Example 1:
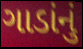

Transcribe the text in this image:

ગાડાંનું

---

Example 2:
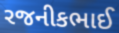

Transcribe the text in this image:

રજનીકભાઈ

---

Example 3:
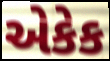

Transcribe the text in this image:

એકેક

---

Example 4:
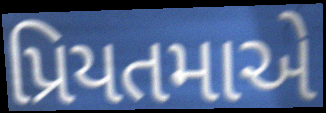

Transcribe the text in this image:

પ્રિયતમાએ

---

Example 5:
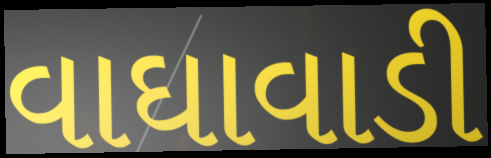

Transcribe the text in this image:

વાઘાવાડી